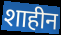
शाहीन